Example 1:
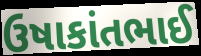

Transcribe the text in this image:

ઉષાકાંતભાઈ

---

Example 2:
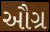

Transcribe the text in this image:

ઔગ્ર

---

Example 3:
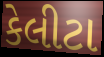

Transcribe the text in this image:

કેલીટા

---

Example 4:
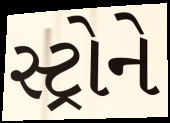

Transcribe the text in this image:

સ્ટ્રોને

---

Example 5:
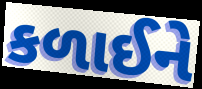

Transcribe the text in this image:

કળાઈને